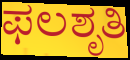
ಫಲಶೃತಿ